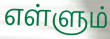
எள்ளும்